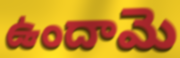
ఉందామె